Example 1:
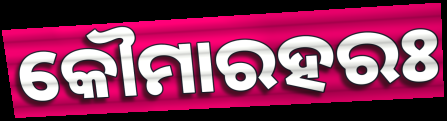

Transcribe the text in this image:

କୌମାରହରଃ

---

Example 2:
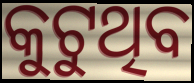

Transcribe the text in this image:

କୁଟୁଥିବ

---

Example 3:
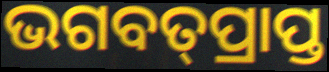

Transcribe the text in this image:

ଭଗବତ୍‌ପ୍ରାପ୍ତ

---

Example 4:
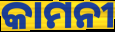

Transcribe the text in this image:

କାମନୀ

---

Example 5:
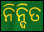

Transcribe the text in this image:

ନିନ୍ଦିତ